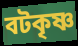
বটকৃষ্ণ